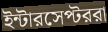
ইন্টারসেপ্টররা